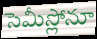
సెమీస్లోనూ